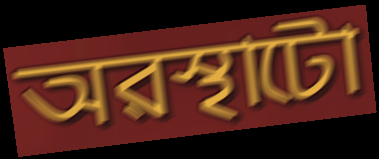
অৱস্থাটো